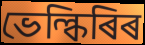
ভেল্কিৰিৰ